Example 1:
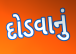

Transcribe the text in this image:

દોડવાનું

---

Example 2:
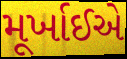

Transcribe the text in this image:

મૂર્ખાઈએ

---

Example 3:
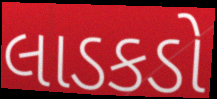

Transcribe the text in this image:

લાડકડો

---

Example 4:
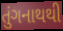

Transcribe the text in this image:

તુંગનાથથી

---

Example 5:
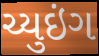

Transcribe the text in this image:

ચ્યુઇંગ